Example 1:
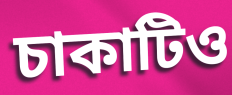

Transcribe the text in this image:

চাকাটিও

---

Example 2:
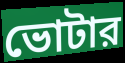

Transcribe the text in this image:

ভোটার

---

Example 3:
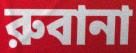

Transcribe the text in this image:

রুবানা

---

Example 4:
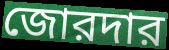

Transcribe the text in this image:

জোরদার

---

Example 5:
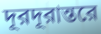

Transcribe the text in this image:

দূরদূরান্তরে